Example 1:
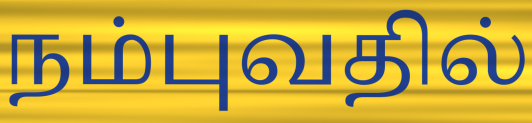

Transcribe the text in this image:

நம்புவதில்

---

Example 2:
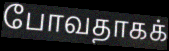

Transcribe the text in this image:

போவதாகக்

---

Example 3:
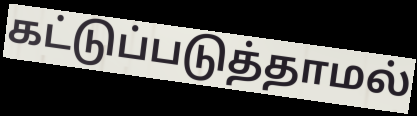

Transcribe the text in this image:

கட்டுப்படுத்தாமல்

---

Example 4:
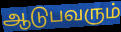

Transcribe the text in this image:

ஆடுபவரும்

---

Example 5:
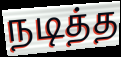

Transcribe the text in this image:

நடித்த